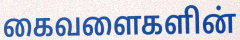
கைவளைகளின்